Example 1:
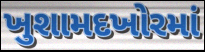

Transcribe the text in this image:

ખુશામદખોરમાં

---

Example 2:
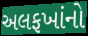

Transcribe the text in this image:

અલફખાંનો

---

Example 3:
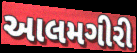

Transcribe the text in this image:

આલમગીરી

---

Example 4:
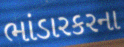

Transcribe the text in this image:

ભાંડારકરના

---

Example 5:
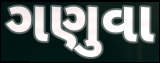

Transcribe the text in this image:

ગણુવા